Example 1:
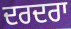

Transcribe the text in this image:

ਦਰਦਰਾ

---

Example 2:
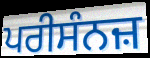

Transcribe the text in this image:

ਪਰੀਸੰਨਜ਼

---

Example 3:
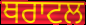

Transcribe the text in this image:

ਥਰਾਟਲ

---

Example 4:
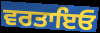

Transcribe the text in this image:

ਵਰਤਾਇਓ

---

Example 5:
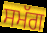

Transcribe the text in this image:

ਸਮੱਗ